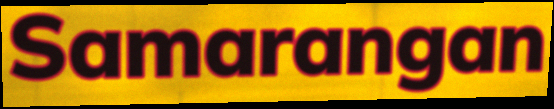
Samarangan